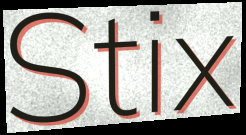
Stix